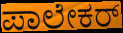
ಪಾಲೇಕರ್